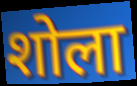
शोला